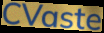
CVaste